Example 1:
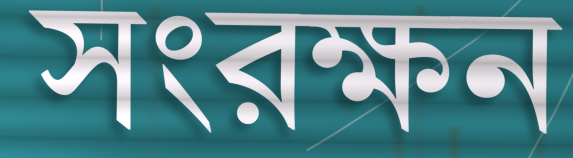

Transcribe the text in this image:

সংরক্ষন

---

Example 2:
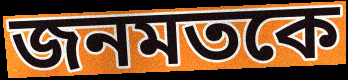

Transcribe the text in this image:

জনমতকে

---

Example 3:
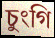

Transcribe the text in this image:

চুংগি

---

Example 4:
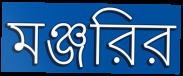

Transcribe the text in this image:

মঞ্জরির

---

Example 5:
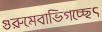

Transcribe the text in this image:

গুরুমেবাভিগচ্ছেৎ